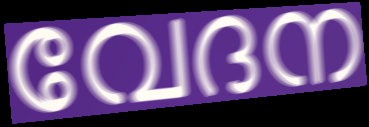
വേദന